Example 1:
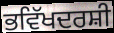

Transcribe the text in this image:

ਭਵਿੱਖਦਰਸ਼ੀ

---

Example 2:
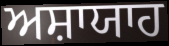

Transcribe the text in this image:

ਅਸ਼ਾਯਾਹ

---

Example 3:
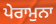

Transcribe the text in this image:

ਪੇਰਾਮੁਨਾ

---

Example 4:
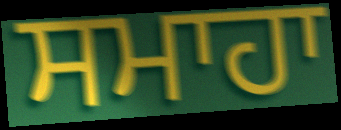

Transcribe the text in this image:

ਸਮਾਹਾ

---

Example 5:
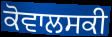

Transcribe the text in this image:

ਕੋਵਾਲਸਕੀ